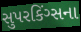
સુપરકિંગ્સના